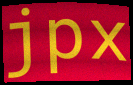
jpx